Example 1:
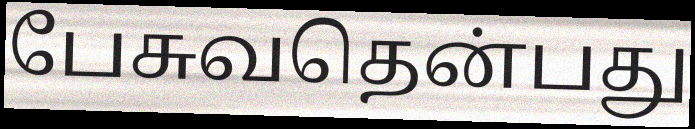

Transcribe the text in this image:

பேசுவதென்பது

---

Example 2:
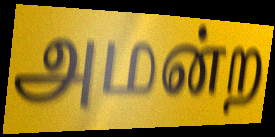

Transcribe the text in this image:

அமன்ற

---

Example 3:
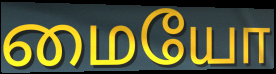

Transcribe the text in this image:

மையோ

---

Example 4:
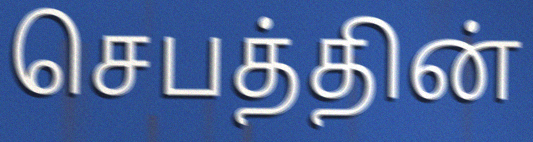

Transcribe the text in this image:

செபத்தின்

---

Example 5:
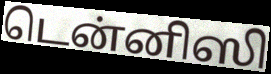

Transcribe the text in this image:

டென்னிஸி